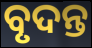
ବୃଦନ୍ତ